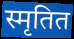
स्मृतित